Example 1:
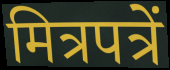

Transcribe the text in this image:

मित्रपत्रें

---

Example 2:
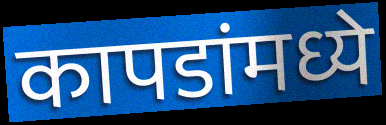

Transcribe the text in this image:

कापडांमध्ये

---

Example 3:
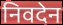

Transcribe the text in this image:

निवदेन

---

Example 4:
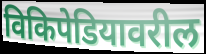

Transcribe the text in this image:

विकिपेडियावरील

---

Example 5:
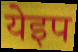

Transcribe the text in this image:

येइप